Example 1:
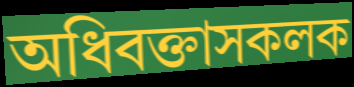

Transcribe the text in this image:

অধিবক্তাসকলক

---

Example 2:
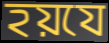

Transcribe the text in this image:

হয়যে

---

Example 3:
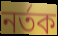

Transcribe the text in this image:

নৰ্তক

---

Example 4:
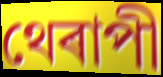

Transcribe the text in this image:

থেৰাপী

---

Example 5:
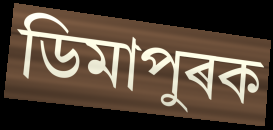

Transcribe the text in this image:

ডিমাপুৰক